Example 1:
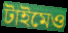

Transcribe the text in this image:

টাইমেও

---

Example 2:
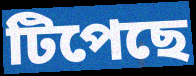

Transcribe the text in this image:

টিপেছে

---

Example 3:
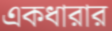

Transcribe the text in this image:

একধারার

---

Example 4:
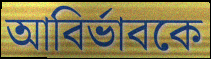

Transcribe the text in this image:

আবির্ভাবকে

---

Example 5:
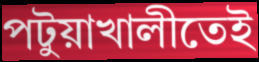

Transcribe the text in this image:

পটুয়াখালীতেই